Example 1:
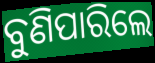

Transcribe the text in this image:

ବୁଣିପାରିଲେ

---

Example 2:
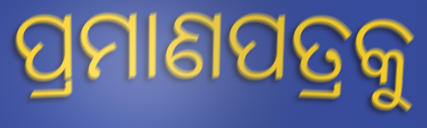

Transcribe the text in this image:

ପ୍ରମାଣପତ୍ରକୁ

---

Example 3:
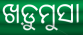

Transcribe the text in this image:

ଖଡ଼ୁମୁସା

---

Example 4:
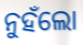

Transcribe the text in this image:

ନୁହଁଲୋ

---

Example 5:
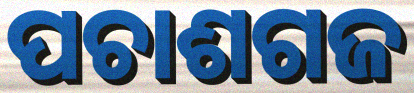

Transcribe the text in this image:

ପଚାଶଗଜ